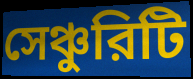
সেঞ্চুরিটি